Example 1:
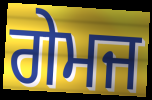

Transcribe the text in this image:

ਗੇਮਜ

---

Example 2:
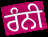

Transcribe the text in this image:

ਰੰਨੀ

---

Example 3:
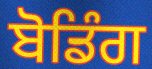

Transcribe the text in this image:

ਬੋਡਿੰਗ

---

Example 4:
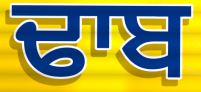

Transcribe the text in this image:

ਢਾਬ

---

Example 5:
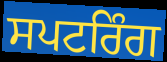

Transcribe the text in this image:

ਸਪਟਰਿੰਗ